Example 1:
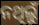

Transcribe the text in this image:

ନଥିଲୁଁ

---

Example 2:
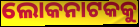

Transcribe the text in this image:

ଲୋକନାଟକକୁ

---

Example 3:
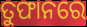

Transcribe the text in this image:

ତୁଫାନରେ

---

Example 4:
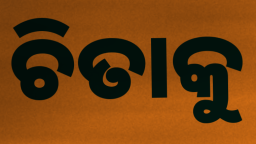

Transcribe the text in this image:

ଚିତାକୁ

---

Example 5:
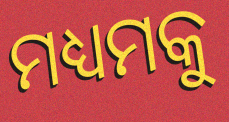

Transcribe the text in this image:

ମଧ୍ୟମକୁ